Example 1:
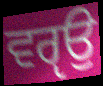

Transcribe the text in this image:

ਵਰੵਉ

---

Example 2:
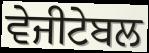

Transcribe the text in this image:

ਵੇਜੀਟੇਬਲ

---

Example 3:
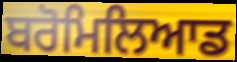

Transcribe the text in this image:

ਬਰੋਮਿਲਿਆਡ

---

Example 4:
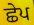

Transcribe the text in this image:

ਛੇਪ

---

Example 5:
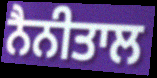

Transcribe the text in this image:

ਨੈਨੀਤਾਲ